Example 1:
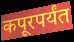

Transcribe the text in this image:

कपूरपर्यंत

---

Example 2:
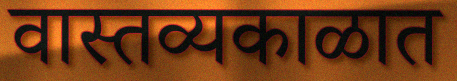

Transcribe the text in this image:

वास्तव्यकाळात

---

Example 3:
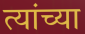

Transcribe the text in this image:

त्यांच्या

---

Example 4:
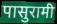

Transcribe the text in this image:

पासुरामी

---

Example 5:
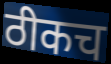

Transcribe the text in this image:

ठीकच